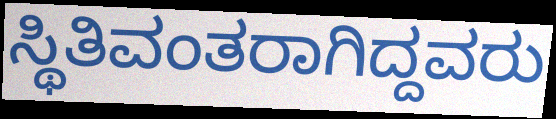
ಸ್ಥಿತಿವಂತರಾಗಿದ್ದವರು